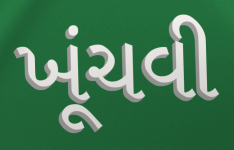
ખૂંચવી